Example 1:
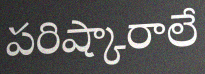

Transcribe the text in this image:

పరిష్కారాలే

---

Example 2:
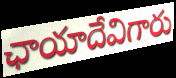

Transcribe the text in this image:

ఛాయాదేవిగారు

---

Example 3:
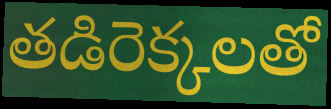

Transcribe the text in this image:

తడిరెక్కలతో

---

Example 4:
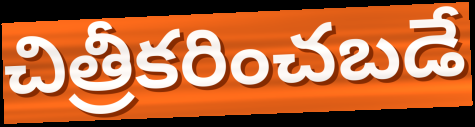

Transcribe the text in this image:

చిత్రీకరించబడే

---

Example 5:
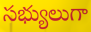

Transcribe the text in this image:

సభ్యులుగా